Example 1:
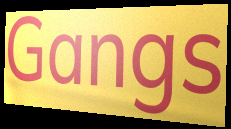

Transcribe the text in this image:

Gangs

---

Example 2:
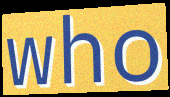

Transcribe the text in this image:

who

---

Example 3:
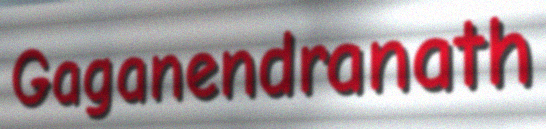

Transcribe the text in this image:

Gaganendranath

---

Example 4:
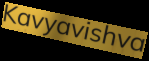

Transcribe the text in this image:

Kavyavishva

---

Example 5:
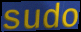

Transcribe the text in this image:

sudo